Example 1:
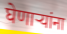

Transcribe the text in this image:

घेणाऱ्यांना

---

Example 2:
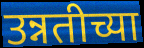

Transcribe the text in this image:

उन्नतीच्या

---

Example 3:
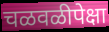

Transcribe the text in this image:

चळवळीपेक्षा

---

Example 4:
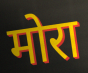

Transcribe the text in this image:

मोरा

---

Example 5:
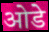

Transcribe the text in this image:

ओडे